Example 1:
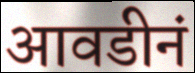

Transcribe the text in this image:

आवडीनं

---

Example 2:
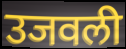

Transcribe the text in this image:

उजवली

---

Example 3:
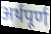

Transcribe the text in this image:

अर्थपूर्ण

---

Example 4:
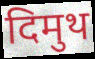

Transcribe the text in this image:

दिमुथ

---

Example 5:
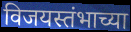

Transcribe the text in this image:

विजयस्तंभाच्या